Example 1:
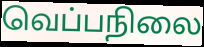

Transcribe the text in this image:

வெப்பநிலை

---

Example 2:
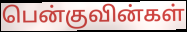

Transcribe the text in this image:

பென்குவின்கள்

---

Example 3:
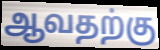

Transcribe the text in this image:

ஆவதற்கு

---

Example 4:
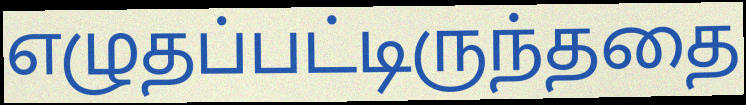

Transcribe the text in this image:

எழுதப்பட்டிருந்ததை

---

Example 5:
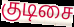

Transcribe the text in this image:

குடிசை